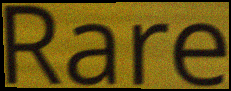
Rare